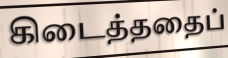
கிடைத்ததைப்